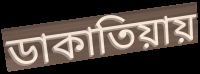
ডাকাতিয়ায়